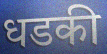
धडकी